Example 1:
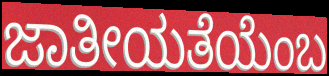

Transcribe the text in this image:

ಜಾತೀಯತೆಯೆಂಬ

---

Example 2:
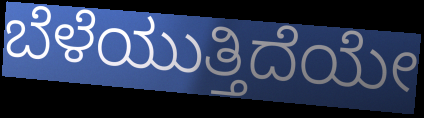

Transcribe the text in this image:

ಬೆಳೆಯುತ್ತಿದೆಯೇ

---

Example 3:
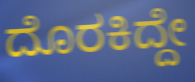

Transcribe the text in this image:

ದೊರಕಿದ್ದೇ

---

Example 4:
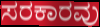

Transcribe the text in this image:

ಸರಕಾರವು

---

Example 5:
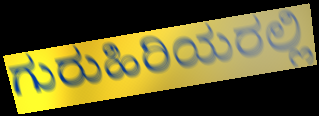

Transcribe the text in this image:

ಗುರುಹಿರಿಯರಲ್ಲಿ